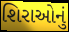
શિરાઓનું